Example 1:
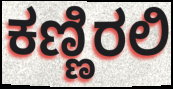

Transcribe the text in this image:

ಕಣ್ಣಿರಲಿ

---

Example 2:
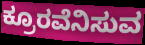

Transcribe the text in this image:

ಕ್ರೂರವೆನಿಸುವ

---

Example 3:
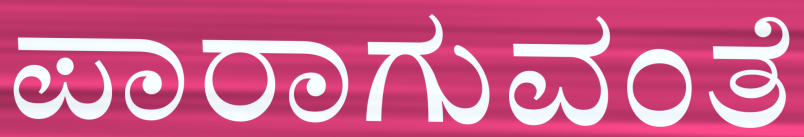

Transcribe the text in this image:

ಪಾರಾಗುವಂತೆ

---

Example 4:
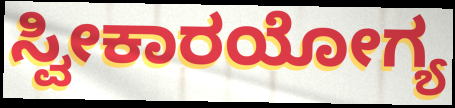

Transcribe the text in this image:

ಸ್ವೀಕಾರಯೋಗ್ಯ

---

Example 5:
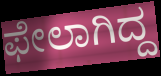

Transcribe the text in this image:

ಫೇಲಾಗಿದ್ದ